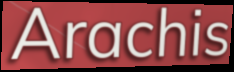
Arachis